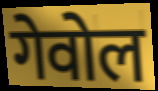
गेवोल